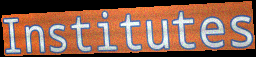
Institutes